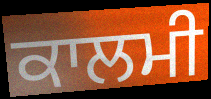
ਕਾਲਮੀ